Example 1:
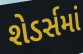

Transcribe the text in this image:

શેડર્સમાં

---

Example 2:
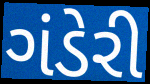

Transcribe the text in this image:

ગંડેરી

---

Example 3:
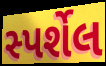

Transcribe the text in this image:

સ્પર્શેલ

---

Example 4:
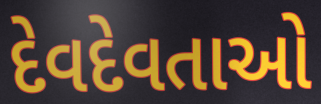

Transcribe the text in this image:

દેવદેવતાઓ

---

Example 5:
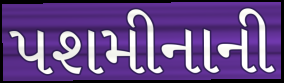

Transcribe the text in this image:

પશમીનાની